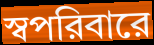
স্বপরিবারে